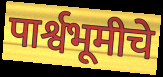
पार्श्वभूमीचे